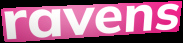
ravens